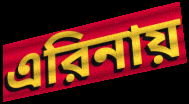
এরিনায়